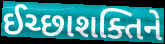
ઈચ્છાશક્તિને